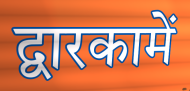
द्वारकामें